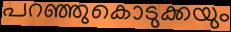
പറഞ്ഞുകൊടുക്കയും